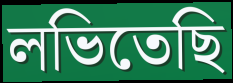
লভিতেছি